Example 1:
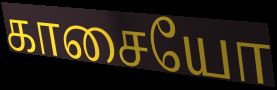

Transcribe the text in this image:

காசையோ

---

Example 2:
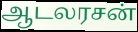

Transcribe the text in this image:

ஆடலரசன்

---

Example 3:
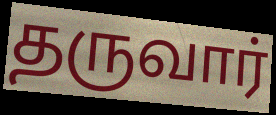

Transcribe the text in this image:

தருவார்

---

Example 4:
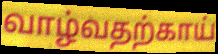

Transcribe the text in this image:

வாழ்வதற்காய்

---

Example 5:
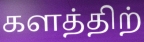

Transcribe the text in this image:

களத்திற்